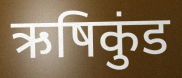
ऋषिकुंड